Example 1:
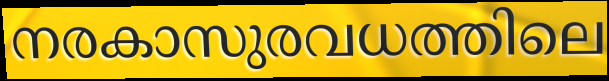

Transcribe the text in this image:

നരകാസുരവധത്തിലെ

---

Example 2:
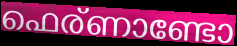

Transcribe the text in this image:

ഫെര്ണാണ്ടോ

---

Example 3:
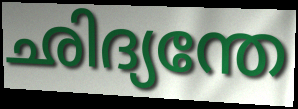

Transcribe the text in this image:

ഛിദ്യന്തേ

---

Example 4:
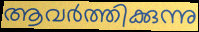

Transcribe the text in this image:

ആവർത്തിക്കുന്നു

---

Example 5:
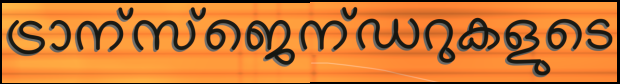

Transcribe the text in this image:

ട്രാന്സ്ജെന്ഡറുകളുടെ